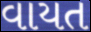
વાયત